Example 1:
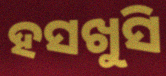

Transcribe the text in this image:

ହସଖୁସି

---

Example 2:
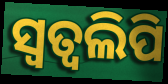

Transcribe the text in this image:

ସ୍ଵତ୍ଵଲିପି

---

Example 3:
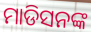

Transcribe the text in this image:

ମାଡିସନଙ୍କ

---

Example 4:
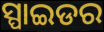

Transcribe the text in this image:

ସ୍ପାଇଡର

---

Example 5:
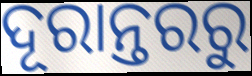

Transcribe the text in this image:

ଦୂରାନ୍ତରରୁ